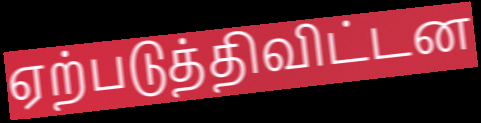
ஏற்படுத்திவிட்டன